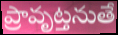
ప్రావృట్తనుతే